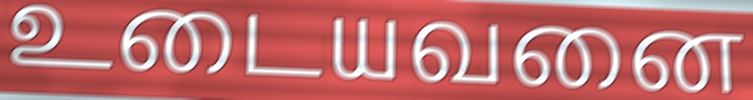
உடையவனை